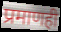
प्रमाणही